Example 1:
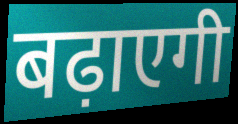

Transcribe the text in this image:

बढ़ाएगी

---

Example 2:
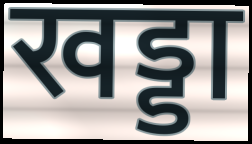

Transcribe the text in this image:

खड्डा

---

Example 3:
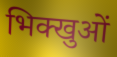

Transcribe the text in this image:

भिक्खुओं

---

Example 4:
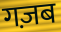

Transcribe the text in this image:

गज़ब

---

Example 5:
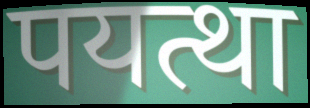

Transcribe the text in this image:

पयत्था